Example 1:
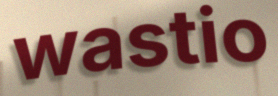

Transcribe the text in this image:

wastio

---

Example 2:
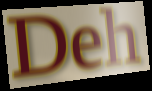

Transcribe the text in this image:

Deh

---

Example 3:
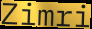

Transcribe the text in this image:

Zimri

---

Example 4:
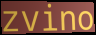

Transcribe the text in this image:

zvino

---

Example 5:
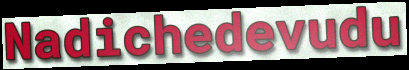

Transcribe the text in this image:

Nadichedevudu